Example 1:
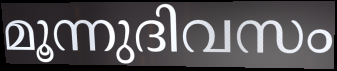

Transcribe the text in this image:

മൂന്നുദിവസം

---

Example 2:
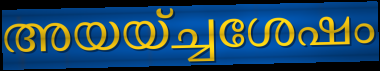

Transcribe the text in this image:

അയയ്ച്ചശേഷം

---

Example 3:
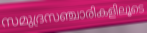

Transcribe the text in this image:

സമുദ്രസഞ്ചാരികളിലൂടെ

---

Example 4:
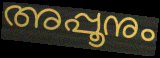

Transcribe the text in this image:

അപ്പൂനും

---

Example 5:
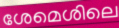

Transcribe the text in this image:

ശേമെശിലെ